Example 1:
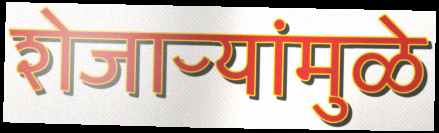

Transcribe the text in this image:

शेजाऱ्यांमुळे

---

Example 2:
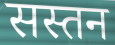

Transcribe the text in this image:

सस्तन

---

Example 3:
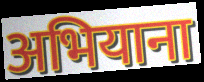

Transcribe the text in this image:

अभियाना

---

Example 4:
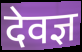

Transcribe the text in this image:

देवज्ञ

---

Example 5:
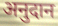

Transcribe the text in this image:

अनुदान